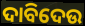
ଦାବିଦେଉ